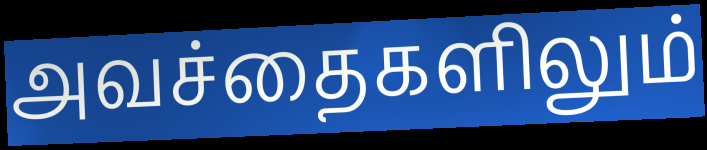
அவச்தைகளிலும்